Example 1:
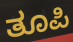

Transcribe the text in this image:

ತೂಪಿ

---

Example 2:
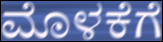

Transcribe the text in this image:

ಮೊಳಕೆಗೆ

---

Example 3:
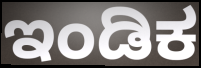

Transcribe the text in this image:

ಇಂಡಿಕ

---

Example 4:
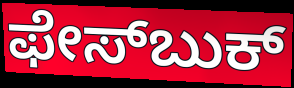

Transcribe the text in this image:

ಫೇಸ್‌ಬುಕ್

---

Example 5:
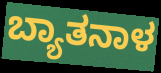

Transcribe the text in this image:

ಬ್ಯಾತನಾಳ